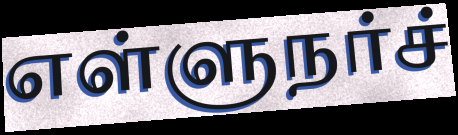
எள்ளுநர்ச்